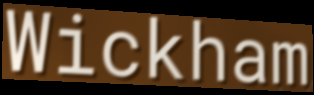
Wickham